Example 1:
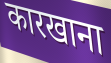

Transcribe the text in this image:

कारखाना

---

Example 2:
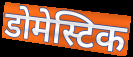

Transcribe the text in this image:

डोमेस्टिक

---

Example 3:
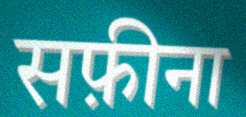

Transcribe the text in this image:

सफ़ीना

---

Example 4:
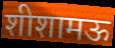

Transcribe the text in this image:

शीशामऊ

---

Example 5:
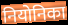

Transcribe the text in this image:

नियोनिका